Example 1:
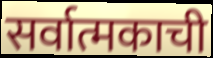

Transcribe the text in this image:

सर्वात्मकाची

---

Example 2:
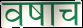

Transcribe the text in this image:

वषाच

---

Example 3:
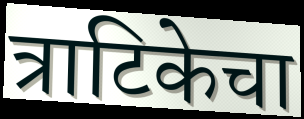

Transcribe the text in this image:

त्राटिकेचा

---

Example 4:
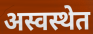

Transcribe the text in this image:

अस्वस्थेत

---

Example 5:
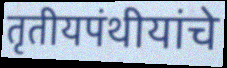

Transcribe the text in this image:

तृतीयपंथीयांचे